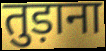
तुड़ाना